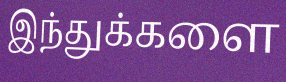
இந்துக்களை